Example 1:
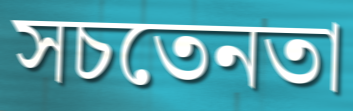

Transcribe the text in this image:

সচতেনতা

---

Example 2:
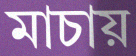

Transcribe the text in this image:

মাচায়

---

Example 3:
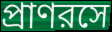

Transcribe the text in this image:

প্রাণরসে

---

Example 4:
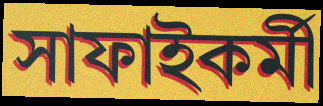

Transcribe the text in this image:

সাফাইকর্মী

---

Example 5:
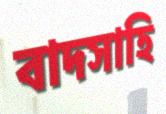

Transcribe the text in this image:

বাদসাহি